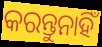
କରନ୍ତୁନାହିଁ